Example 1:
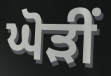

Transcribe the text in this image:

ਘੋੜੀਂ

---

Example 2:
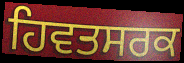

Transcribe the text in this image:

ਹਿਵਤਸਰਕ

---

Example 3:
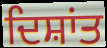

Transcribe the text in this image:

ਦਿਸ਼ਾਂਤ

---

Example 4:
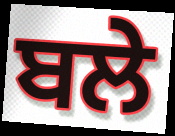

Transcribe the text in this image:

ਬਲੇ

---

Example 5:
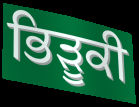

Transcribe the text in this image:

ਭਿੜੂਕੀ